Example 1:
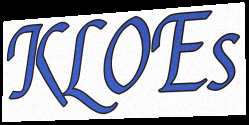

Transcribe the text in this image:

KLOEs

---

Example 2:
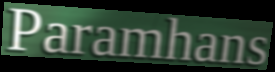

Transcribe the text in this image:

Paramhans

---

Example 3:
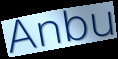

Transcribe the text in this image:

Anbu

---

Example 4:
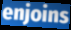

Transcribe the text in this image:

enjoins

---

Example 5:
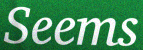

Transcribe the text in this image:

Seems